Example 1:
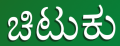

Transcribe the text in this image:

ಚಿಟುಕು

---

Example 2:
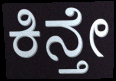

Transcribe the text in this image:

ಕಿನ್ತೇ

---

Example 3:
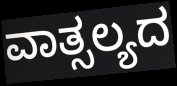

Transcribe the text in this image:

ವಾತ್ಸಲ್ಯದ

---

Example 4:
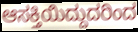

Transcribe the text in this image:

ಆಸಕ್ತಿಯಿದ್ದುದರಿಂದ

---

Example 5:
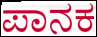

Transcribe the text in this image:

ಪಾನಕ